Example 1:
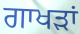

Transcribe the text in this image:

ਗਾਖੜਾਂ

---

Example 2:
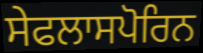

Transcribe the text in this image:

ਸੇਫਲਾਸਪੋਰਿਨ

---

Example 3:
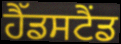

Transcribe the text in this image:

ਹੈੱਡਸਟੈਂਡ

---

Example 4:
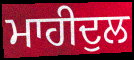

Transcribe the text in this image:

ਮਾਹੀਦੁਲ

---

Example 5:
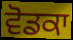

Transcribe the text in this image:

ਵੋਡਕਾ